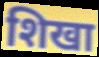
शिखा